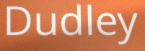
Dudley